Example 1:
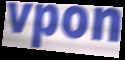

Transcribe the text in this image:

vpon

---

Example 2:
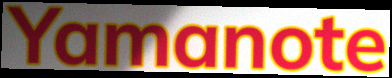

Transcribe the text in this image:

Yamanote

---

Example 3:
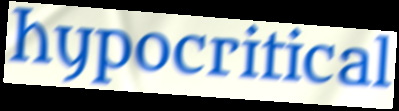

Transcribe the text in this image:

hypocritical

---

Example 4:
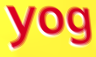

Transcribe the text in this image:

yog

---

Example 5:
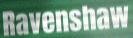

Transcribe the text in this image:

Ravenshaw